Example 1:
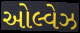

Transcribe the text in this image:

ઓલ્વેઝ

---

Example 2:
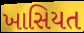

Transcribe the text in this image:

ખાસિયત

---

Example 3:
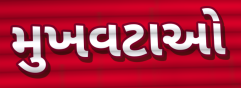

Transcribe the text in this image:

મુખવટાઓ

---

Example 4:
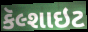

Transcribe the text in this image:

કૅલ્શાઇટ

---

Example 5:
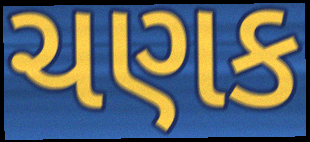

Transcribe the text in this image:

ચણક